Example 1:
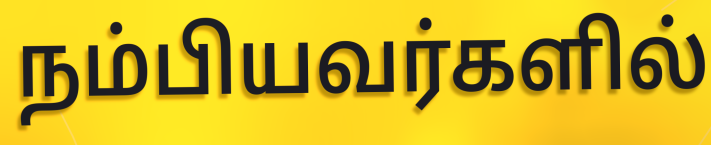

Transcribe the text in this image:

நம்பியவர்களில்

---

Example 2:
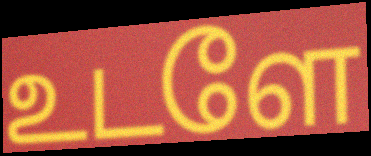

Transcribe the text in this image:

உடளே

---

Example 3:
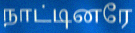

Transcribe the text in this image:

நாட்டினரே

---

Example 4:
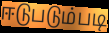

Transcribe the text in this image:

ஈடுபடும்படி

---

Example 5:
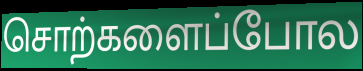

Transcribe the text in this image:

சொற்களைப்போல